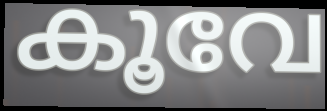
കൂവേ